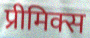
प्रीमिक्स